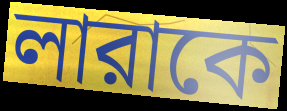
লারাকে